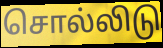
சொல்லிடு